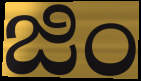
జిం